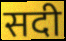
सदी